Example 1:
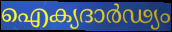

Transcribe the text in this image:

ഐക്യദാർഢ്യം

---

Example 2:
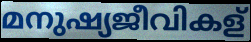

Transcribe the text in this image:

മനുഷ്യജീവികള്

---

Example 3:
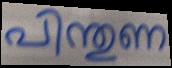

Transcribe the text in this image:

പിന്തുണ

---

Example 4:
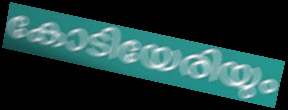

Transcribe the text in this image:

കോടിയേരിയും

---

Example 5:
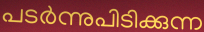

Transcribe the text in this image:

പടർന്നുപിടിക്കുന്ന